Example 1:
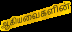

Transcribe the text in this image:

ஆகியவைகளின்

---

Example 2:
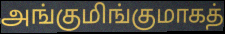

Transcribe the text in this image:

அங்குமிங்குமாகத்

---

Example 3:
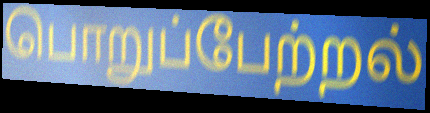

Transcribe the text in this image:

பொறுப்பேற்றல்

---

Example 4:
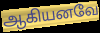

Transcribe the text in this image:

ஆகியனவே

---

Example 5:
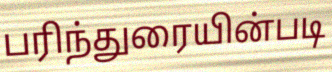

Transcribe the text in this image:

பரிந்துரையின்படி